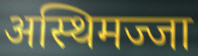
अस्थिमज्जा